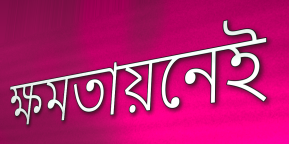
ক্ষমতায়নেই